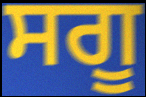
ਸਗੂ